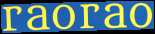
raorao